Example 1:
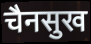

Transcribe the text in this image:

चैनसुख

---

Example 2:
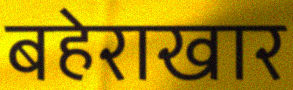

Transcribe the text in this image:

बहेराखार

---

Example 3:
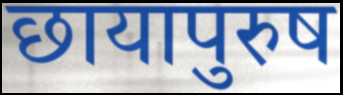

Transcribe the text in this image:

छायापुरुष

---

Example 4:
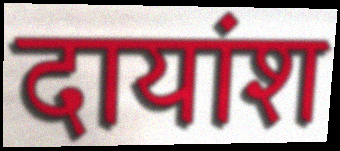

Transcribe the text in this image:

दायांश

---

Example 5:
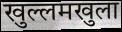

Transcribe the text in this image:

खुल्लमखुला